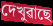
দেখুৱাছে